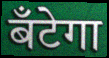
बँटेगा